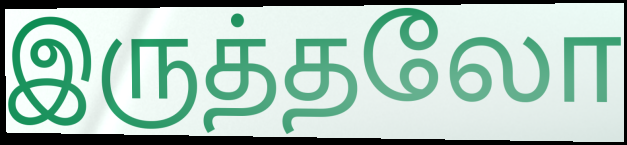
இருத்தலோ